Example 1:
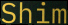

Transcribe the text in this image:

Shim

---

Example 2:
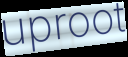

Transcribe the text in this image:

uproot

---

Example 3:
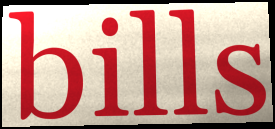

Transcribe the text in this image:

bills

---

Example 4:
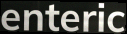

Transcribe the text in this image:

enteric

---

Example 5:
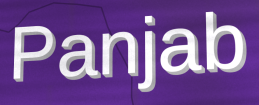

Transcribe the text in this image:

Panjab